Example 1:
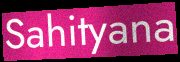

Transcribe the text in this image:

Sahityana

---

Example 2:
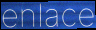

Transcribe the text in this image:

enlace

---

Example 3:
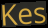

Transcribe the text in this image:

Kes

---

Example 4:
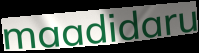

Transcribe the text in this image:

maadidaru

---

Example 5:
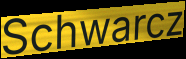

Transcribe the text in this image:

Schwarcz